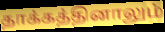
தாக்கத்தினாலும்